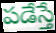
పడేస్తే